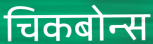
चिकबोन्स